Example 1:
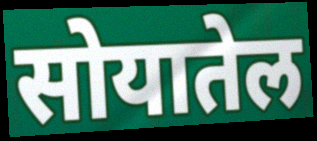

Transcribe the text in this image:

सोयातेल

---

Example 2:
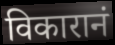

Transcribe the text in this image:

विकारानं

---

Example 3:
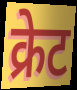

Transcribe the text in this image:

क्रेट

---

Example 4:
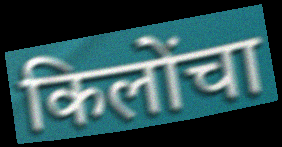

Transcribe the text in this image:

किलोंचा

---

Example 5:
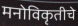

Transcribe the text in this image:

मनोविकृतीचे